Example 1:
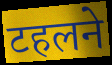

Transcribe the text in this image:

टहलने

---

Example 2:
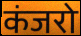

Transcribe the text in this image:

कंजरो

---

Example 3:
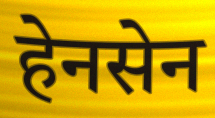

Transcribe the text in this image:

हेनसेन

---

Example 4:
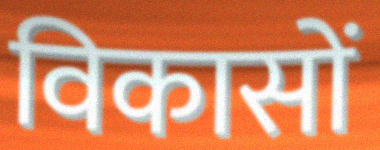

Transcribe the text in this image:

विकासों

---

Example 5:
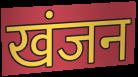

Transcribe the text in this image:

खंजन